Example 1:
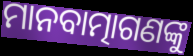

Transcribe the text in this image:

ମାନବାତ୍ମାଗଣଙ୍କୁ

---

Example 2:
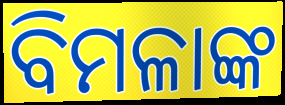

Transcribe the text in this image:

ବିମଳାଙ୍କ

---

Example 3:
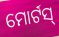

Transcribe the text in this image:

ମୋର୍ଟସ୍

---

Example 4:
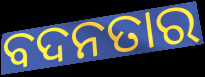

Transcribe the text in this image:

ବଦନତାର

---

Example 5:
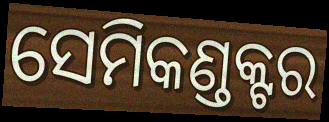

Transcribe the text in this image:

ସେମିକଣ୍ଡକ୍ଟର